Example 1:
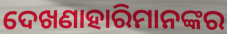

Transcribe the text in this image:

ଦେଖଣାହାରିମାନଙ୍କର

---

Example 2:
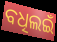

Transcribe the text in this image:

ବଧିଲଇଁ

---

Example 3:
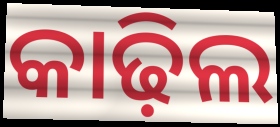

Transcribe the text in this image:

କାଢ଼ିଲ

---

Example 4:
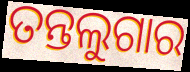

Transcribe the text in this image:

ତନ୍ତଲୁଗାର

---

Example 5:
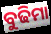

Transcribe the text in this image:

ବୁଢିମା